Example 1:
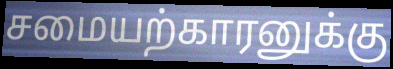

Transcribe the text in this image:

சமையற்காரனுக்கு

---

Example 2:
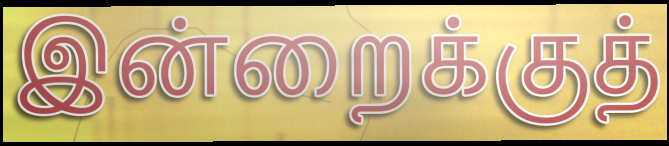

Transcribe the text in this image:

இன்றைக்குத்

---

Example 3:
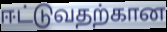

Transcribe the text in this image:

ஈட்டுவதற்கான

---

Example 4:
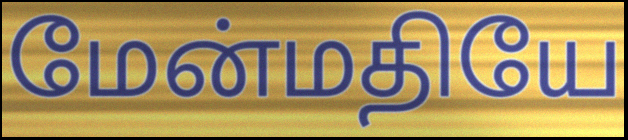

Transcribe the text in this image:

மேன்மதியே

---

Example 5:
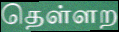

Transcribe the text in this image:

தெள்ளற